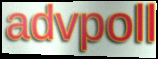
advpoll